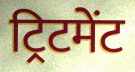
ट्रिटमेंट